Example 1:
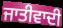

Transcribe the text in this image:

ਜਾਤੀਵਾਦੀ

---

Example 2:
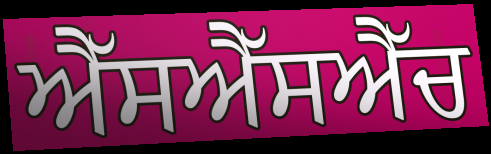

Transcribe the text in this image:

ਐੱਸਐੱਸਐੱਚ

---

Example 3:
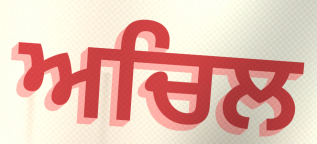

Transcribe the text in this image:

ਅਚਿਲ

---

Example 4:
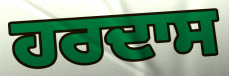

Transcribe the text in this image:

ਹਰਦਾਸ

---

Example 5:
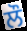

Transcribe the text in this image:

ਲੌ